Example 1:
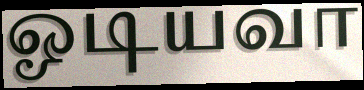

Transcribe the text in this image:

ஓடியவா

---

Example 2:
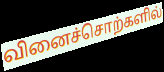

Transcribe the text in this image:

வினைச்சொற்களில்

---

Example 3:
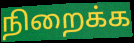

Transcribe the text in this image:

நிறைக்க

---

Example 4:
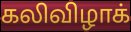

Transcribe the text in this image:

கலிவிழாக்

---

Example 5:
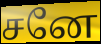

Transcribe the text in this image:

சனே